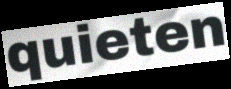
quieten